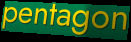
pentagon